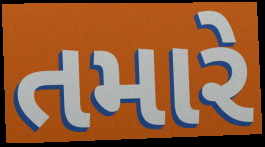
તમારે